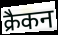
क्रैकन